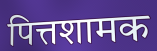
पित्तशामक